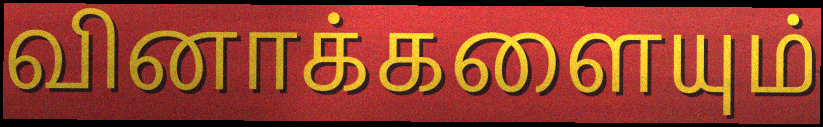
வினாக்களையும்